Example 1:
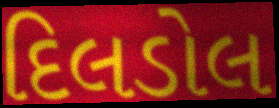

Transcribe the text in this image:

દિલડોલ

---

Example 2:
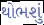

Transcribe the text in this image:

થોભશું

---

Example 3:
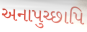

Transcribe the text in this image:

અનાપુચ્છાપિ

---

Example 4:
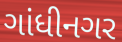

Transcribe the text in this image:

ગાંધીનગર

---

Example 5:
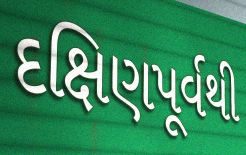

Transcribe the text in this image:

દક્ષિણપૂર્વથી